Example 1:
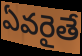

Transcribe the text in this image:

ఏవరైతే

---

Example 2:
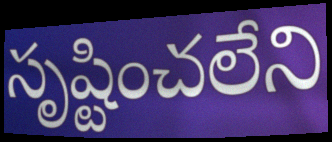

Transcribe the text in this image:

సృష్టించలేని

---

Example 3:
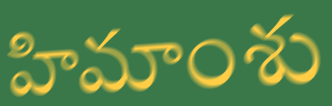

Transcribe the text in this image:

హిమాంశు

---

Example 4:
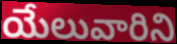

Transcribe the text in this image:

యేలువారిని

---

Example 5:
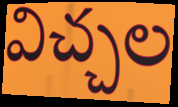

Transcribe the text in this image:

విచ్చల